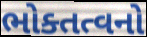
ભોક્તત્વનો